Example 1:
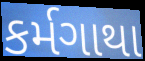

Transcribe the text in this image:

કર્મગાથા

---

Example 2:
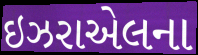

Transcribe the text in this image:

ઇઝરાએલના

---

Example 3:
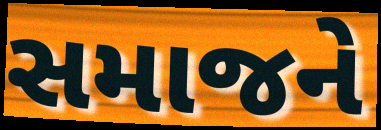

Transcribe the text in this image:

સમાજને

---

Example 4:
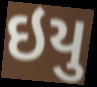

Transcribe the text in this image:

ઇયુ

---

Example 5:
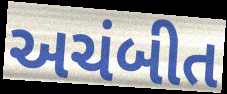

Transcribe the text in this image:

અચંબીત